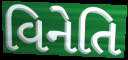
વિનેતિ